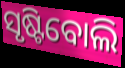
ସୃଷ୍ଟିବୋଲି